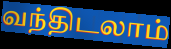
வந்திடலாம்